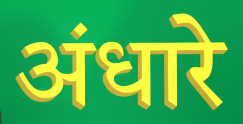
अंधारे